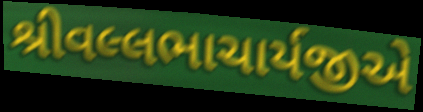
શ્રીવલ્લભાચાર્યજીએ